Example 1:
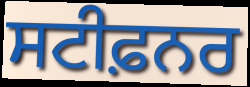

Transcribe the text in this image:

ਸਟੀਫ਼ਨਰ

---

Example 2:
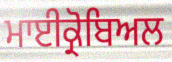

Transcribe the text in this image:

ਮਾਈਕ੍ਰੋਬਿਅਲ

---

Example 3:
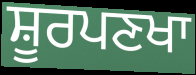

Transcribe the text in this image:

ਸ਼ੂਰਪਣਖਾ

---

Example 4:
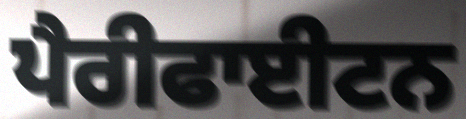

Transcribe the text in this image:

ਪੈਰੀਫਾਈਟਨ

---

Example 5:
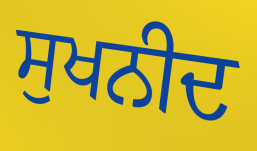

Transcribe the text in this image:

ਸੁਖਨੀਦ